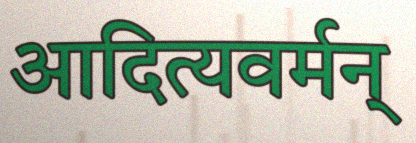
आदित्यवर्मन्